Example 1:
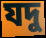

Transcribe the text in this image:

যদু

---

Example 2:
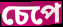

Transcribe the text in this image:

চেপে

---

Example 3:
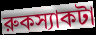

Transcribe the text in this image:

রুকস্যাকটা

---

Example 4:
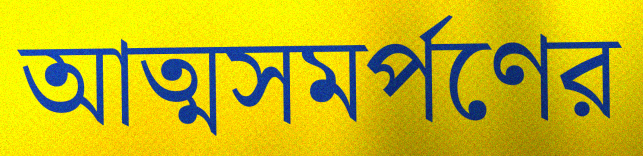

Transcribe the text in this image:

আত্মসমর্পণের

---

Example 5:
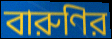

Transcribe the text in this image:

বারুণির